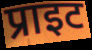
प्राइट